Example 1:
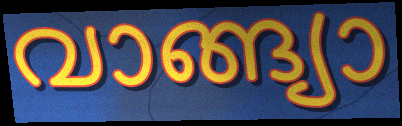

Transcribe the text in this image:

വാങ്ങ്യാ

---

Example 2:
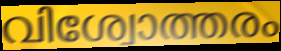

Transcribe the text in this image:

വിശ്വോത്തരം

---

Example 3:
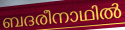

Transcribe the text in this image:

ബദരീനാഥിൽ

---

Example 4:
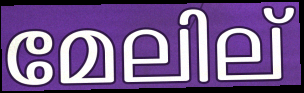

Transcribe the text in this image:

മേലില്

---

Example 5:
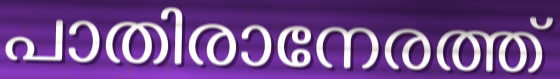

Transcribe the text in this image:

പാതിരാനേരത്ത്